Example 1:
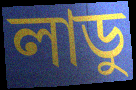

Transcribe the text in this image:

লাডু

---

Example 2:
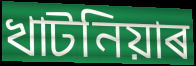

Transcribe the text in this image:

খাটনিয়াৰ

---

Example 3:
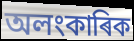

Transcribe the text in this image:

অলংকাৰিক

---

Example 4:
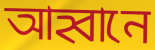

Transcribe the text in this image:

আহ্বানে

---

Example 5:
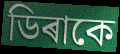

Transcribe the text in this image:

ডিৰাকে